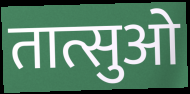
तात्सुओ